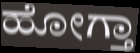
ಹೋಗ್ತಾ